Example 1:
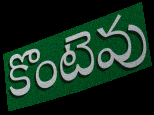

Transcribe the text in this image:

కొంటెవు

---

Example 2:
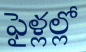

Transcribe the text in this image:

ఫైళ్లల్లో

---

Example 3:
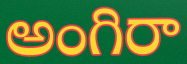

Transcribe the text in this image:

అంగిరా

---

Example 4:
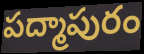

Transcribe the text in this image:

పద్మాపురం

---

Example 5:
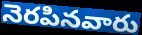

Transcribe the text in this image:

నెరపినవారు